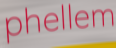
phellem